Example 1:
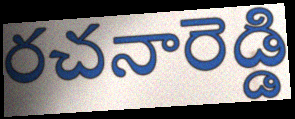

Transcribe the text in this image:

రచనారెడ్డి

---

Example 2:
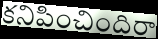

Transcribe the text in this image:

కనిపించిందిరా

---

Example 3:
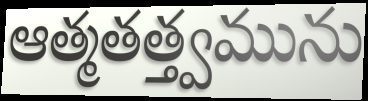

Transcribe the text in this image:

ఆత్మతత్త్వమును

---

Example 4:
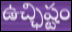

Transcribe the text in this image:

ఉచ్ఛిష్టం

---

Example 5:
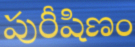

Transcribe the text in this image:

పురీషిణం